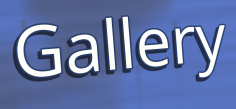
Gallery